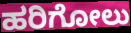
ಹರಿಗೋಲು